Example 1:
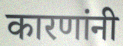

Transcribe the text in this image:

कारणांनी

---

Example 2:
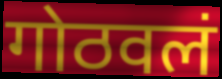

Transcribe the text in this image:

गोठवलं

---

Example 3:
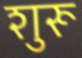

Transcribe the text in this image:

शुरू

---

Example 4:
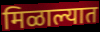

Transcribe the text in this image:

मिळाल्यात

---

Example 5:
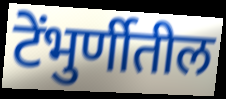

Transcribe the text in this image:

टेंभुर्णीतील